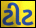
ટીટ